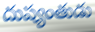
దుష్యంతుడు